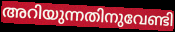
അറിയുന്നതിനുവേണ്ടി